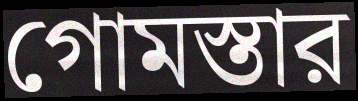
গোমস্তার